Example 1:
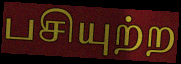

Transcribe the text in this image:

பசியுற்ற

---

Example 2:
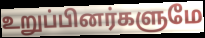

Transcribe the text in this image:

உறுப்பினர்களுமே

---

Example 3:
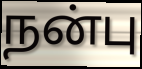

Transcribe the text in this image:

நன்பு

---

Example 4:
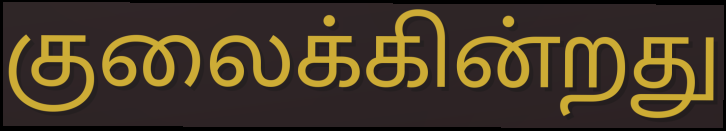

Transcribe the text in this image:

குலைக்கின்றது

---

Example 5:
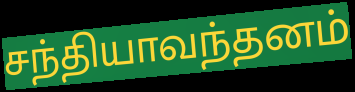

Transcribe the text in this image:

சந்தியாவந்தனம்